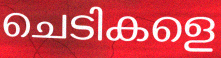
ചെടികളെ